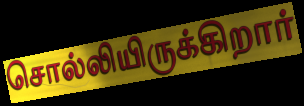
சொல்லியிருக்கிறார்